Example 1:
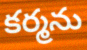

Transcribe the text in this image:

కర్మను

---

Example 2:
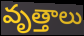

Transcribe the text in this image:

వృత్తాలు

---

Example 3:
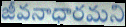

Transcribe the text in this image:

జీవనాధారమని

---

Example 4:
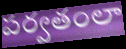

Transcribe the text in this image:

పర్వతంలా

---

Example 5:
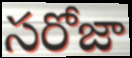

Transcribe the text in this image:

సరోజా